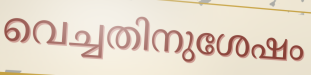
വെച്ചതിനുശേഷം